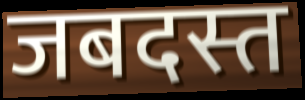
जबदस्त